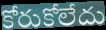
కోరుకోలేదు